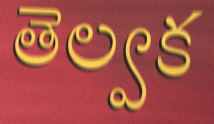
తెల్వక